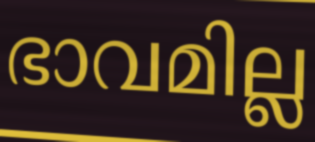
ഭാവമില്ല